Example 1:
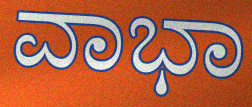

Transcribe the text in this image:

ವಾಭಾ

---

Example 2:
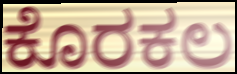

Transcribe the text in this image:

ಕೊರಕಲ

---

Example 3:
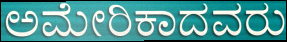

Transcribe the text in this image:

ಅಮೇರಿಕಾದವರು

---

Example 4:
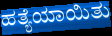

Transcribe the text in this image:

ಹತ್ಯೆಯಾಯಿತು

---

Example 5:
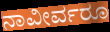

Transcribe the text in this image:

ನಾವೀರ್ವರೂ